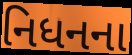
નિધનના